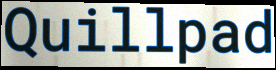
Quillpad